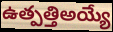
ఉత్పత్తిఅయ్యే